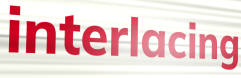
interlacing